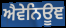
ਐਵੇਨਿਊਞ